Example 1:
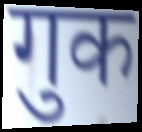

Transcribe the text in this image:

गुक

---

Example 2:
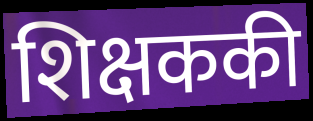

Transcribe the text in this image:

शिक्षककी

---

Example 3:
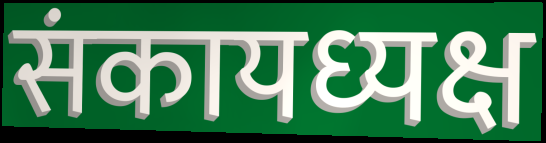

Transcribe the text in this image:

संकायध्यक्ष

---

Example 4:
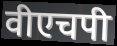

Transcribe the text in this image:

वीएचपी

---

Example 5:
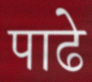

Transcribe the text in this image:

पाढे